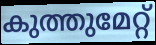
കുത്തുമേറ്റ്